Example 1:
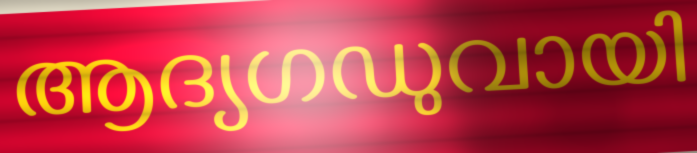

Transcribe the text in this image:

ആദ്യഗഡുവായി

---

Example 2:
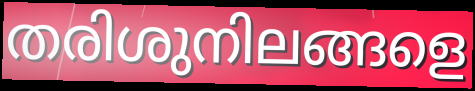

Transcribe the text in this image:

തരിശുനിലങ്ങളെ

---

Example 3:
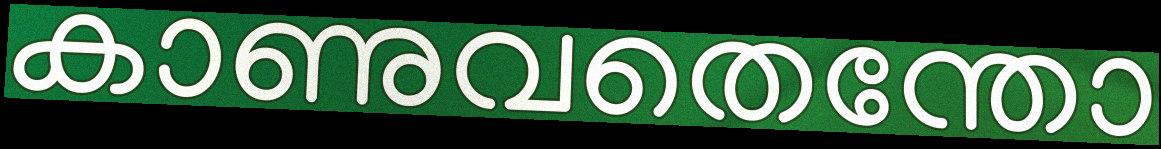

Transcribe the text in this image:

കാണുവതെന്തോ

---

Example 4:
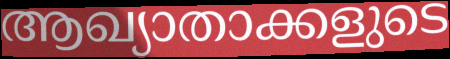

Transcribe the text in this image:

ആഖ്യാതാക്കളുടെ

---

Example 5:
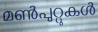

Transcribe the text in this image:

മൺപുറ്റുകൾ